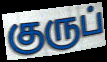
குருப்